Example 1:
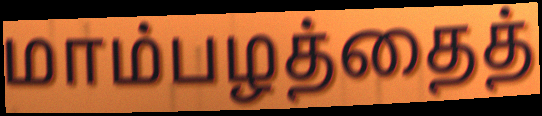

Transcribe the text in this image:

மாம்பழத்தைத்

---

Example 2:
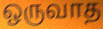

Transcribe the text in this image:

ஒருவாத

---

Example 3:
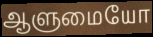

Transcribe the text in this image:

ஆளுமையோ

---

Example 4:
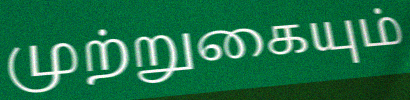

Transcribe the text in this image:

முற்றுகையும்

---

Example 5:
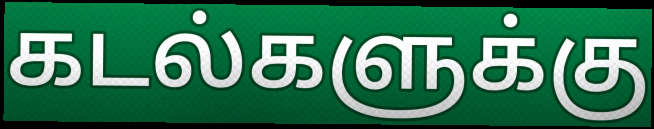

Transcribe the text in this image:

கடல்களுக்கு